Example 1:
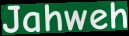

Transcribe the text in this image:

Jahweh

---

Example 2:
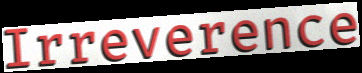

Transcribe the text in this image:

Irreverence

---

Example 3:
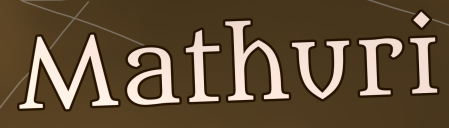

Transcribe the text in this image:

Mathuri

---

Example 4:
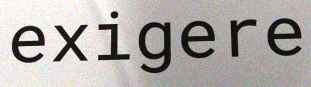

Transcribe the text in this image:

exigere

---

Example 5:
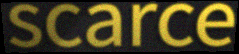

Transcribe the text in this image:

scarce